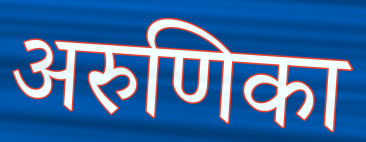
अरुणिका